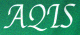
AQIS